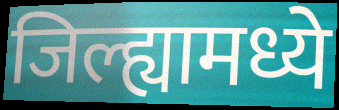
जिल्ह्यामध्ये